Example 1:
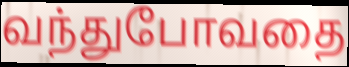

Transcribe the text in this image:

வந்துபோவதை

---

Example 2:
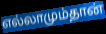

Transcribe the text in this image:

எல்லாமும்தான்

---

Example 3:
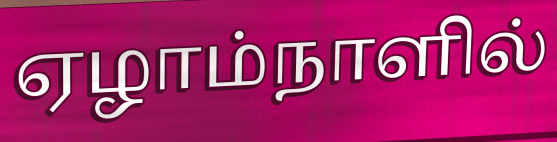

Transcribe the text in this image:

ஏழாம்நாளில்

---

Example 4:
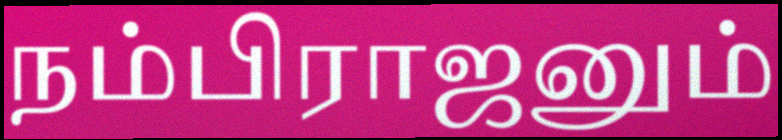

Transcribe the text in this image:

நம்பிராஜனும்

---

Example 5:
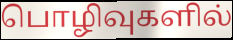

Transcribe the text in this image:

பொழிவுகளில்